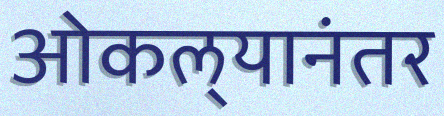
ओकल्यानंतर